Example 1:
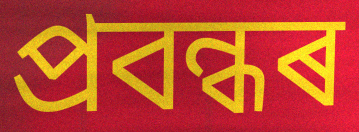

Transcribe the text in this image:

প্ৰবন্ধৰ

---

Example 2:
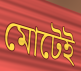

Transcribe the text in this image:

মোটেই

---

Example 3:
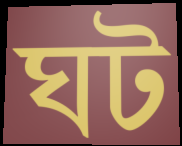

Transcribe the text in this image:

ঘট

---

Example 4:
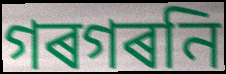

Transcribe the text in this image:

গৰগৰনি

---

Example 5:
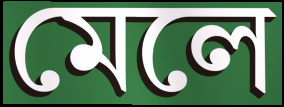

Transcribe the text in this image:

মেলে